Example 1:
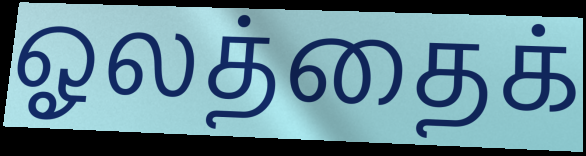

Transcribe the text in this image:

ஓலத்தைக்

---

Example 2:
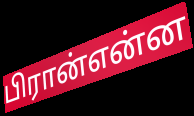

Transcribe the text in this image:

பிரான்என்ன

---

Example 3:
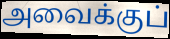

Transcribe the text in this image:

அவைக்குப்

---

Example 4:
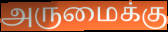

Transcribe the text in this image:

அருமைக்கு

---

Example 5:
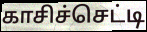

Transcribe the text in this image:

காசிச்செட்டி